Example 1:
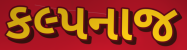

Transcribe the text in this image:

કલ્પનાજ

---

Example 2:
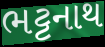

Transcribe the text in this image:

ભટ્ટનાથ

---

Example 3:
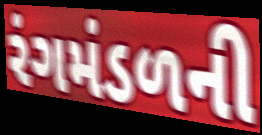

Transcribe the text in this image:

રંગમંડળની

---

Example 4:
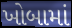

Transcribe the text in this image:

ખોબામાં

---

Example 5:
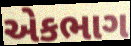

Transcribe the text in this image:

એકભાગ